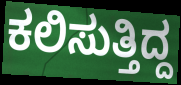
ಕಲಿಸುತ್ತಿದ್ದ